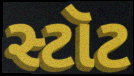
સ્ટૉટ